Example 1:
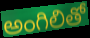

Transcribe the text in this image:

అంగిలితో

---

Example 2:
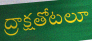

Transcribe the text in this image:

ద్రాక్షతోటలూ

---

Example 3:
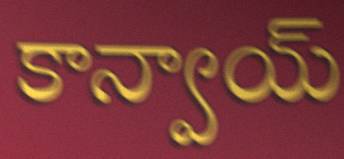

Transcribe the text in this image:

కాన్వాయ్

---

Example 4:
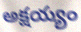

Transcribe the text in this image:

అక్షయ్యం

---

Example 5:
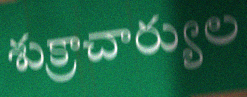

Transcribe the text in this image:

శుక్రాచార్యుల